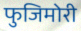
फुजिमोरी